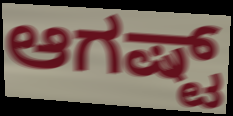
ಆಗಷ್ಟ್